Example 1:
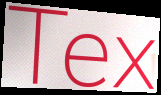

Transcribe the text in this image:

Tex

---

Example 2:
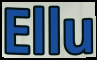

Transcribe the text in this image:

Ellu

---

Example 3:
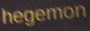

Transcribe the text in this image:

hegemon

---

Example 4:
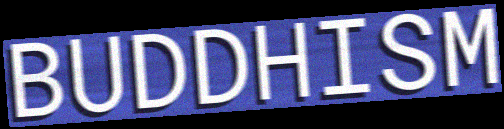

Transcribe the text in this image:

BUDDHISM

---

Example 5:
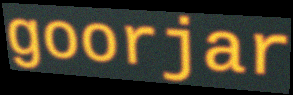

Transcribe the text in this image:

goorjar